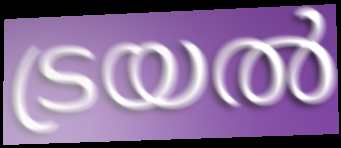
ട്രയൽ